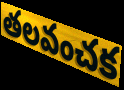
తలవంచక